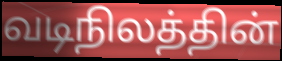
வடிநிலத்தின்